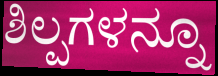
ಶಿಲ್ಪಗಳನ್ನೂ